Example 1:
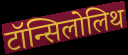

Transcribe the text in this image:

टॉन्सिलोलिथ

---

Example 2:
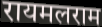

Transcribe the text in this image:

रायमलराम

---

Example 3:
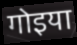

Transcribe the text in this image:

गोइया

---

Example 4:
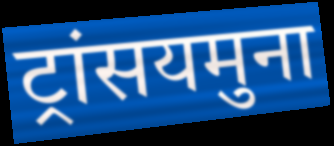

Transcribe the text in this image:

ट्रांसयमुना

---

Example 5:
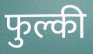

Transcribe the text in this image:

फुल्की